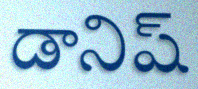
డానిష్